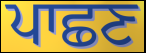
ਪਾਛਣ